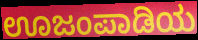
ಊಜಂಪಾಡಿಯ